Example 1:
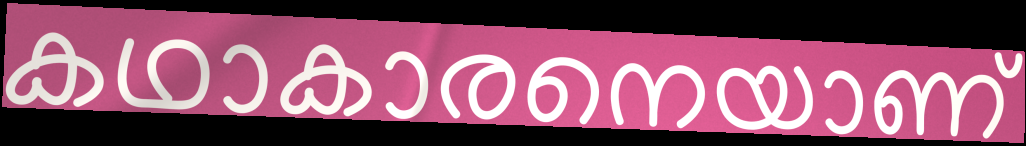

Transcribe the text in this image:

കഥാകാരനെയാണ്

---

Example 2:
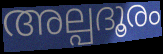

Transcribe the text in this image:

അല്പദൂരം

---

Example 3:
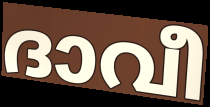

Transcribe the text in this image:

ദാവീ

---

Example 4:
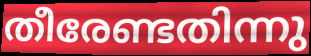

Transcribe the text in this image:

തീരേണ്ടതിന്നു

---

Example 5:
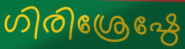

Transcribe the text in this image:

ഗിരിശ്രേഷ്ഠേ